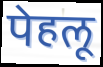
पेहलू